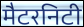
मैटरनिटी